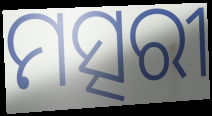
ମତ୍ସରୀ